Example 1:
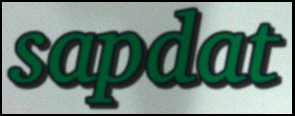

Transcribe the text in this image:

sapdat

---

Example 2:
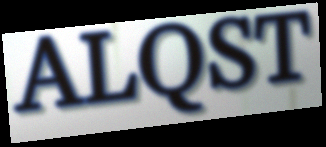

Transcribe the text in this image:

ALQST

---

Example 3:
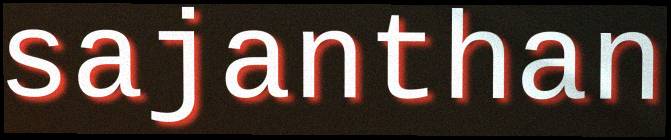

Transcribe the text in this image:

sajanthan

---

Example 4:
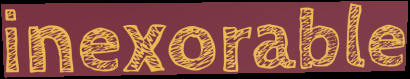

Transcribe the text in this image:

inexorable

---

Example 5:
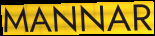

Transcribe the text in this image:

MANNAR